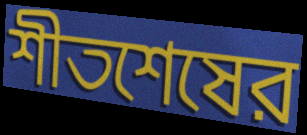
শীতশেষের